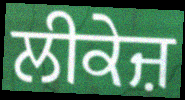
ਲੀਕੇਜ਼